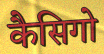
कैसिगो